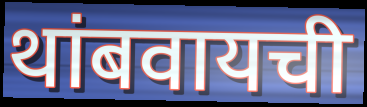
थांबवायची